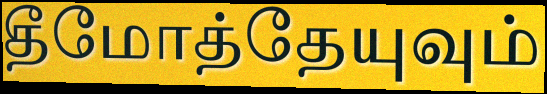
தீமோத்தேயுவும்